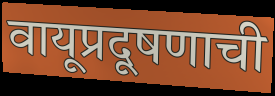
वायूप्रदूषणाची